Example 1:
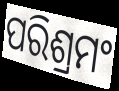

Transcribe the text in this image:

ପରିଶ୍ରମଂ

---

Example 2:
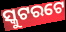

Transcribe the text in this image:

ସ୍କୁଟରଟେ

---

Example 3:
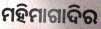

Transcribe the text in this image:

ମହିମାଗାଦିର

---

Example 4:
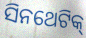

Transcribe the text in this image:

ସିନଥେଟିକ୍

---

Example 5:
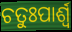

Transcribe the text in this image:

ଚତୁଃପାର୍ଶ୍ବ